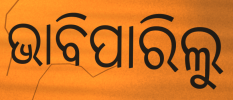
ଭାବିପାରିଲୁ